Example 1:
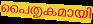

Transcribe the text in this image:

പൈതൃകമായി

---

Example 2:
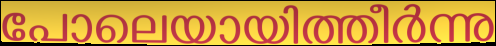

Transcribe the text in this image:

പോലെയായിത്തീർന്നു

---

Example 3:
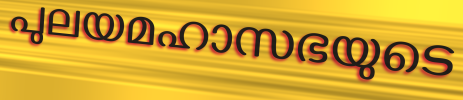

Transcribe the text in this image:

പുലയമഹാസഭയുടെ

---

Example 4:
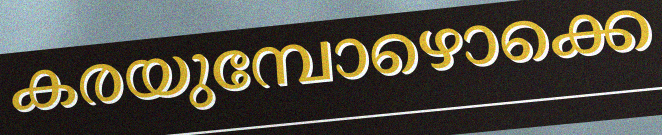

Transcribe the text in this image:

കരയുമ്പോഴൊക്കെ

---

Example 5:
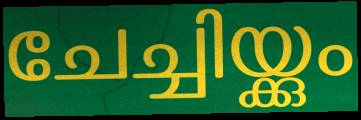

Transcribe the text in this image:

ചേച്ചിയ്ക്കും